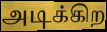
அடிக்கிற